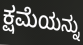
ಕ್ಷಮೆಯನ್ನು